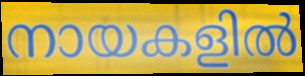
നായകളിൽ